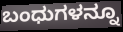
ಬಂಧುಗಳನ್ನೂ